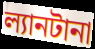
ল্যানটানা